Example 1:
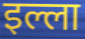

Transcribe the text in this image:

इल्ला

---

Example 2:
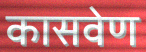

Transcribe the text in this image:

कासवेण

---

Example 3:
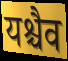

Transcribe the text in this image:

यश्चैव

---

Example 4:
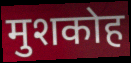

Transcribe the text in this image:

मुशकोह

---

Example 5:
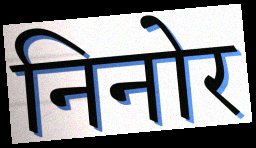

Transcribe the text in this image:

निनोर